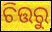
ଚିତ୍ତରୁ